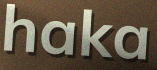
haka